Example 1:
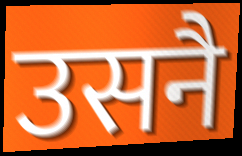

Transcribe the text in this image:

उसनै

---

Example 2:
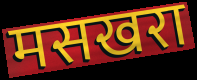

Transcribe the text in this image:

मसखरा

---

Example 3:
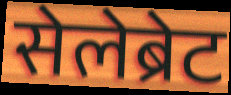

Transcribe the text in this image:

सेलेब्रेट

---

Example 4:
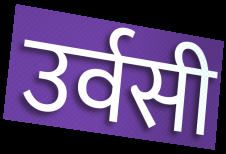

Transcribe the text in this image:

उर्वसी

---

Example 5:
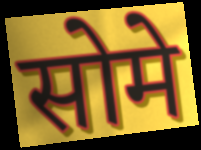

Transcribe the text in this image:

सोमे